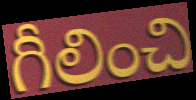
గీలించి